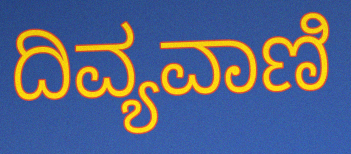
ದಿವ್ಯವಾಣಿ